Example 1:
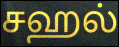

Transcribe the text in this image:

சஹல்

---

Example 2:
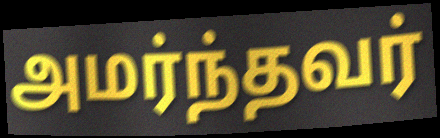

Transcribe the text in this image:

அமர்ந்தவர்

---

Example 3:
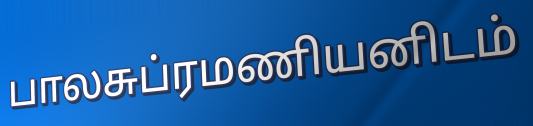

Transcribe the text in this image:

பாலசுப்ரமணியனிடம்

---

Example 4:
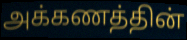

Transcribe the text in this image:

அக்கணத்தின்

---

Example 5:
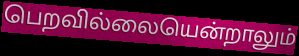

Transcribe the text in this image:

பெறவில்லையென்றாலும்